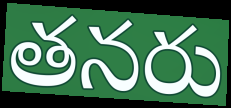
తనరు